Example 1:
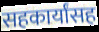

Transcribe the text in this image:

सहकार्यांसह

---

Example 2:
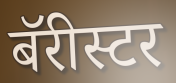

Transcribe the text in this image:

बॅरीस्टर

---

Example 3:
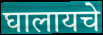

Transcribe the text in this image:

घालायचे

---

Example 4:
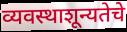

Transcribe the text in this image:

व्यवस्थाशून्यतेचे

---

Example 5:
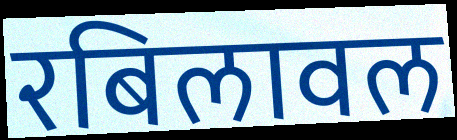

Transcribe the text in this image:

रबिलावल